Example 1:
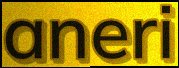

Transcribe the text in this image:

aneri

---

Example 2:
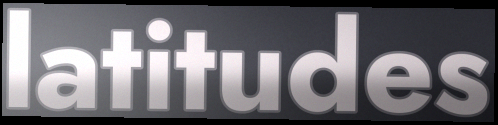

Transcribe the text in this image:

latitudes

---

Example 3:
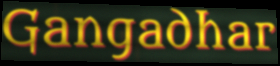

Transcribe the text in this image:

Gangadhar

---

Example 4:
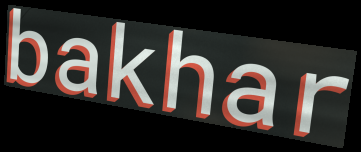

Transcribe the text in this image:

bakhar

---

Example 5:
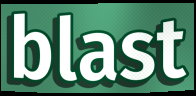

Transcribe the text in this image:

blast